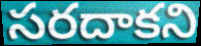
సరదాకని